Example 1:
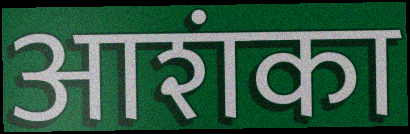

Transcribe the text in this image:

आशंका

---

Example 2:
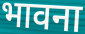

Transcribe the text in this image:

भावना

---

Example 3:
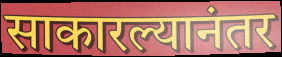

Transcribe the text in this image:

साकारल्यानंतर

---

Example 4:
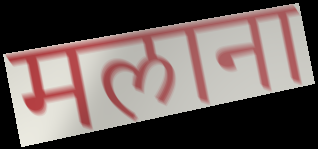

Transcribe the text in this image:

मलाना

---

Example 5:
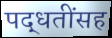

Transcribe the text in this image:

पद्धतींसह